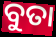
ବୁତା